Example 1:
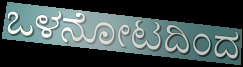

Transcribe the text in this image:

ಒಳನೋಟದಿಂದ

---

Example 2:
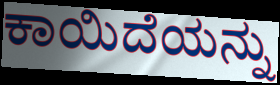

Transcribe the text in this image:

ಕಾಯಿದೆಯನ್ನು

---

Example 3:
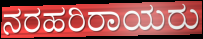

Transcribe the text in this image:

ನರಹರಿರಾಯರು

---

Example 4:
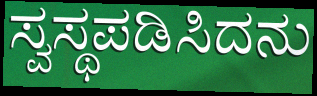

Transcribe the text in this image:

ಸ್ವಸ್ಥಪಡಿಸಿದನು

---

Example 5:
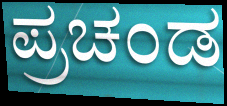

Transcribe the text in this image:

ಪ್ರಚಂಡ